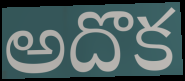
అదొక